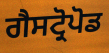
ਗੈਸਟ੍ਰੋਪੋਡ